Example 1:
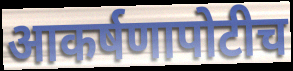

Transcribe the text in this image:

आकर्षणापोटीच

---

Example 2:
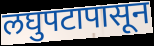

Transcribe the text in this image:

लघुपटापासून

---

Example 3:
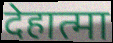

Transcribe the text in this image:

देहात्मा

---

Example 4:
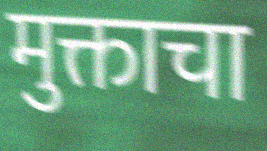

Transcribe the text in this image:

मुक्ताचा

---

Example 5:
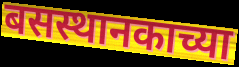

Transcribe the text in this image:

बसस्थानकाच्या